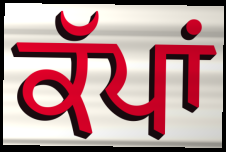
ਕੱਪਾਂ